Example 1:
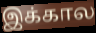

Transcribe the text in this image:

இக்கால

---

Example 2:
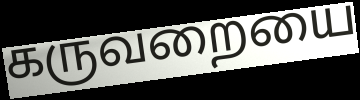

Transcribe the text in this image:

கருவறையை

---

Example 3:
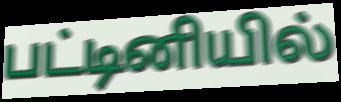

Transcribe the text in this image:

பட்டினியில்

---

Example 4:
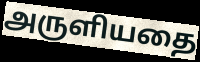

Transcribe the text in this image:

அருளியதை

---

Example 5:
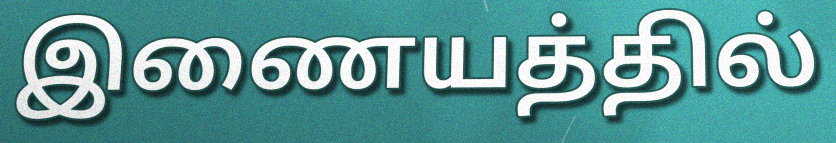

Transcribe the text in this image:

இணையத்தில்